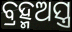
ବ୍ରହ୍ମଅସ୍ତ୍ର